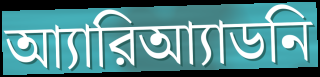
আ্যারিআ্যাডনি